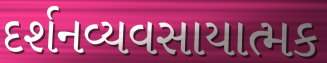
દર્શનવ્યવસાયાત્મક